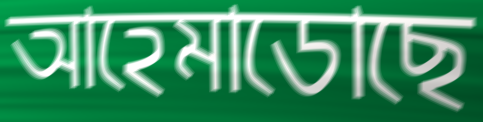
আহেমাডোছে